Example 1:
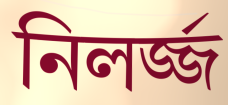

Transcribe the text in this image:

নিলর্জ্জ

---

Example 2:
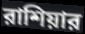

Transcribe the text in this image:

রাশিয়ার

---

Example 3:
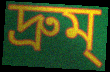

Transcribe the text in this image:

দ্রুম্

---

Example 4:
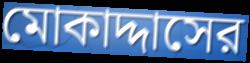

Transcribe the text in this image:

মোকাদ্দাসের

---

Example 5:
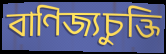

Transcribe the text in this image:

বাণিজ্যচুক্তি